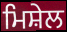
ਮਿਸ਼ੇਲ